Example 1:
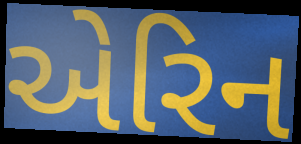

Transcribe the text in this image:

એરિન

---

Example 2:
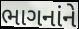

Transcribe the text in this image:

ભાગનાંને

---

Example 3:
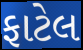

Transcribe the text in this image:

ફાટેલ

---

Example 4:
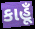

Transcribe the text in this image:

કાહૂઁ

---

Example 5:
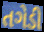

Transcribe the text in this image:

તગેડી